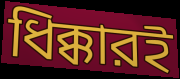
ধিক্কারই